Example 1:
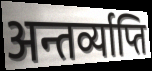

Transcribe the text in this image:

अन्तर्व्याप्ति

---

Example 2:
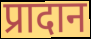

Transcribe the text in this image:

प्रादान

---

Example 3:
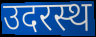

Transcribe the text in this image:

उदरस्थ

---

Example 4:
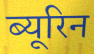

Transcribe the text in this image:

ब्यूरिन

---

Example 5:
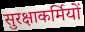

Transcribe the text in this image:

सुरक्षाकर्मियों